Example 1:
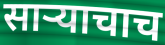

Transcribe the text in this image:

साऱ्याचाच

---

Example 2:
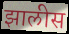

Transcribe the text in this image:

झालीस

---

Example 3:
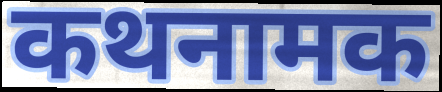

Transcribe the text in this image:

कथनामक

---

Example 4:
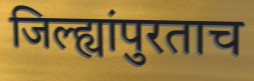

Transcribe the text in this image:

जिल्ह्यांपुरताच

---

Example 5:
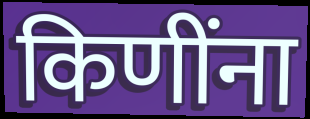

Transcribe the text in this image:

किणींना